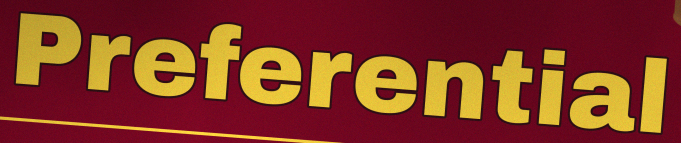
Preferential